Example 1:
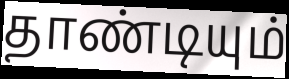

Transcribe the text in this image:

தாண்டியும்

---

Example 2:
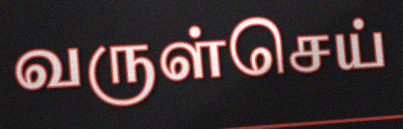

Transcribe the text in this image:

வருள்செய்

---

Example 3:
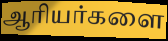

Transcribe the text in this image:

ஆரியர்களை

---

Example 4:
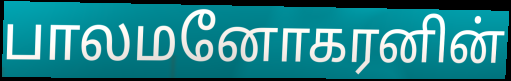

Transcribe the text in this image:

பாலமனோகரனின்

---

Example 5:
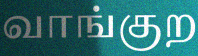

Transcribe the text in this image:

வாங்குற